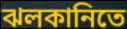
ঝলকানিতে